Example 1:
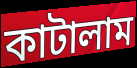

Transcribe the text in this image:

কাটালাম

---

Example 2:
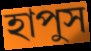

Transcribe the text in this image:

হাপুস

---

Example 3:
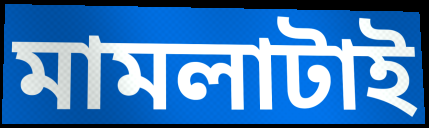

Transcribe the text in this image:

মামলাটাই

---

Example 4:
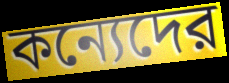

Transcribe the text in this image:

কন্যেদের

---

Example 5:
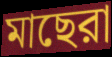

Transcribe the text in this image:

মাছেরা